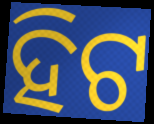
ହିଟ